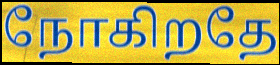
நோகிறதே